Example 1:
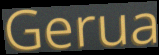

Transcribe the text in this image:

Gerua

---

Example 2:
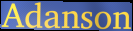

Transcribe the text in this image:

Adanson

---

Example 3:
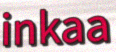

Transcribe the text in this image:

inkaa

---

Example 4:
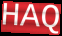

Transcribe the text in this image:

HAQ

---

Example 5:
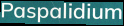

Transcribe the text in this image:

Paspalidium